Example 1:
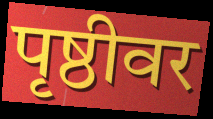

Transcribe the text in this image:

पृष्ठीवर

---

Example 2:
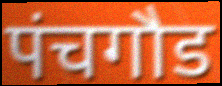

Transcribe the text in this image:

पंचगौड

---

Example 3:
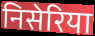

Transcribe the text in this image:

निसेरिया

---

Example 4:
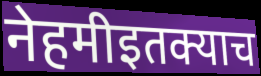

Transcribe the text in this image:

नेहमीइतक्याच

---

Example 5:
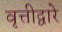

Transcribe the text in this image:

वृत्तीद्वारे